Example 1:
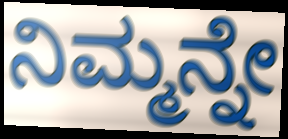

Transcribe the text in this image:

ನಿಮ್ಮನ್ನೇ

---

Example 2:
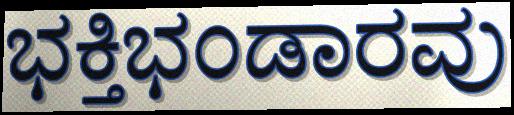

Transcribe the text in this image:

ಭಕ್ತಿಭಂಡಾರವು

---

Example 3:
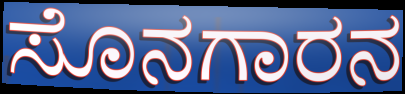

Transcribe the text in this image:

ಸೊನಗಾರನ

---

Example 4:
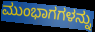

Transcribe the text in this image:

ಮುಂಭಾಗಗಳನ್ನು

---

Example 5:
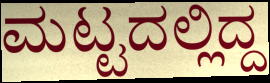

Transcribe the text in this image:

ಮಟ್ಟದಲ್ಲಿದ್ದ